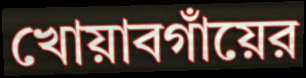
খোয়াবগাঁয়ের